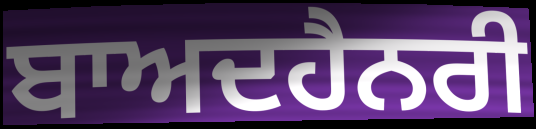
ਬਾਅਦਹੈਨਰੀ